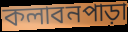
কলাবনপাড়া